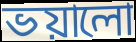
ভয়ালো